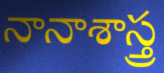
నానాశాస్త్ర